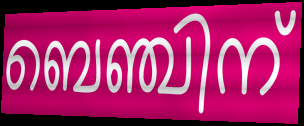
ബെഞ്ചിന്